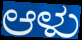
ಆಳು